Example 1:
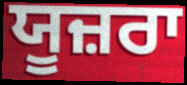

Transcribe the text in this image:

ਯੂਜ਼ਰਾ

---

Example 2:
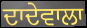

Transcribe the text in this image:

ਦਾਦੇਵਾਲਾ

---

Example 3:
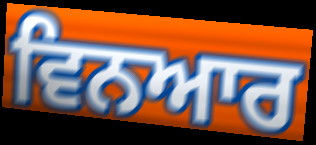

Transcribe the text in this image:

ਵਿਨਆਰ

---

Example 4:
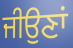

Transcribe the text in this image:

ਜੀਉਣਾਂ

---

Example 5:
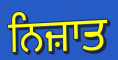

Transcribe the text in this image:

ਨਿਜ਼ਾਤ